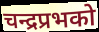
चन्द्रप्रभको